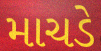
માચડે